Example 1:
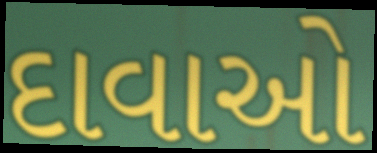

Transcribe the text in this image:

દાવાઓ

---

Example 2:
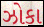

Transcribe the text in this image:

ઝોકા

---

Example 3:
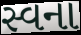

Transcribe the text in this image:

સ્વના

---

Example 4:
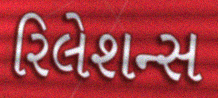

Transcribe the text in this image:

રિલેશન્સ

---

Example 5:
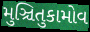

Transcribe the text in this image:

મુઞ્ચિતુકામોવ